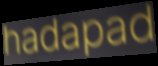
hadapad